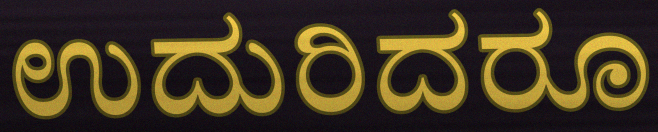
ಉದುರಿದರೂ